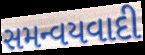
સમન્વયવાદી